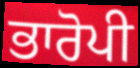
ਭਾਰੋਪੀ